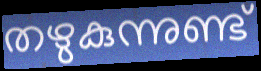
തഴുകുന്നുണ്ട്